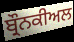
ਬ੍ਰੌਨਕੀਅਲ